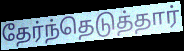
தேர்ந்தெடுத்தார்